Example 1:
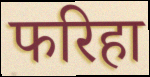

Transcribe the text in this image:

फरिहा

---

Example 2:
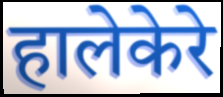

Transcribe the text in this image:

हालेकेरे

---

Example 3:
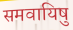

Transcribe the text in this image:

समवायिषु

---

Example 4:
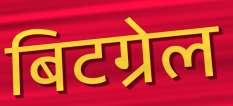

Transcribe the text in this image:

बिटग्रेल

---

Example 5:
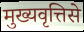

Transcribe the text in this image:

मुख्यवृत्तिसे